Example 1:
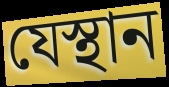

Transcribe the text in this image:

যেস্থান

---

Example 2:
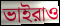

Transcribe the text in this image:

ভাইরাও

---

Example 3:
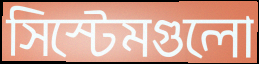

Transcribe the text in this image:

সিস্টেমগুলো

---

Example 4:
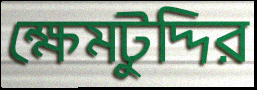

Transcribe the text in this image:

ক্ষেমটুদ্দির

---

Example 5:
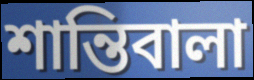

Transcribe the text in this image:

শান্তিবালা